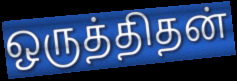
ஒருத்திதன்